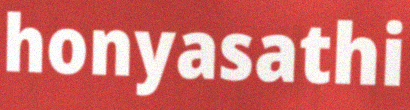
honyasathi